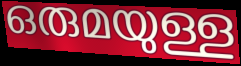
ഒരുമയുള്ള